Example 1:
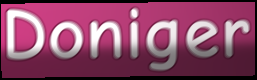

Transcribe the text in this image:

Doniger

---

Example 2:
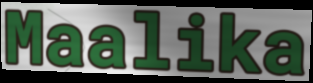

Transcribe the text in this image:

Maalika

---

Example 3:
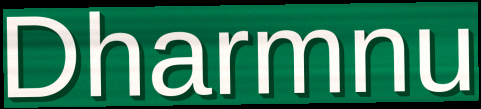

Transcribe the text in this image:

Dharmnu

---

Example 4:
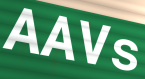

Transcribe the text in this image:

AAVs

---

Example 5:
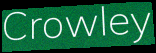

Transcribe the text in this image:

Crowley